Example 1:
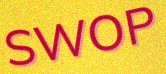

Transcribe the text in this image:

SWOP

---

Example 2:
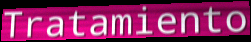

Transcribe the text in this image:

Tratamiento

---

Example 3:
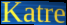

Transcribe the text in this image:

Katre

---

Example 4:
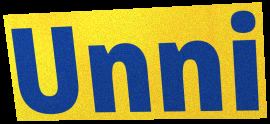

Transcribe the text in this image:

Unni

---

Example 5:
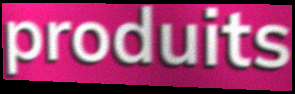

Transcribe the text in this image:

produits